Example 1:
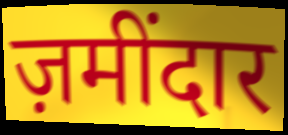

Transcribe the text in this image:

ज़मींदार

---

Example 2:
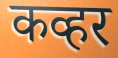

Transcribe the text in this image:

कव्हर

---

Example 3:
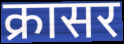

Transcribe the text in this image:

क्रासर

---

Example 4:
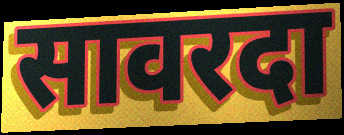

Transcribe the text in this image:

सावरदा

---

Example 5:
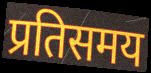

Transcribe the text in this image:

प्रतिसमय